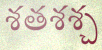
శతశశ్చ